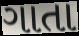
ગાતા